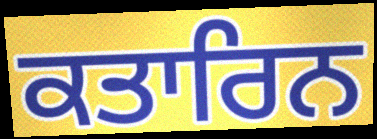
ਕਤਾਰਿਨ